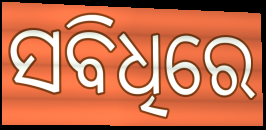
ସବିଧିରେ